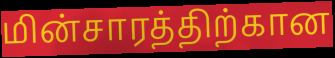
மின்சாரத்திற்கான